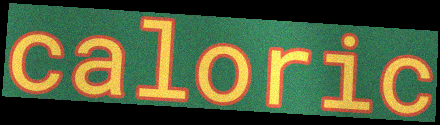
caloric